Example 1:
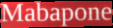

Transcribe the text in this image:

Mabapone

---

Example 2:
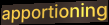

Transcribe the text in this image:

apportioning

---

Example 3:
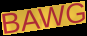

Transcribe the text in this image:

BAWG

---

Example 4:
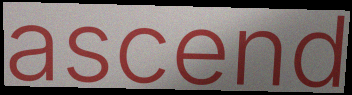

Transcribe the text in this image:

ascend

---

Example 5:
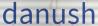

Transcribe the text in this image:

danush